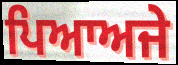
ਪਿਆਅਜੇ